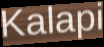
Kalapi